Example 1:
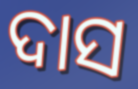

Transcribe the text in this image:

ଦାସ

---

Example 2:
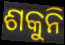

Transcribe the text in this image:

ଶକୁନି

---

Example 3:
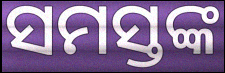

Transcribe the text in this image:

ସମସ୍ତଙ୍କ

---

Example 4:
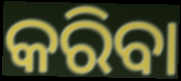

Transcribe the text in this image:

କରିବା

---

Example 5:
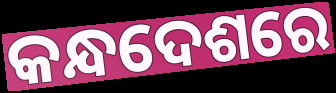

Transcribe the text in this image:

କନ୍ଧଦେଶରେ